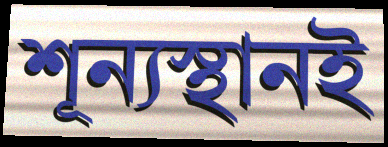
শূন্যস্থানই